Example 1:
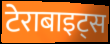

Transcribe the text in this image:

टेराबाइट्स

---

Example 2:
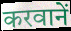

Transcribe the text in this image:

करवानें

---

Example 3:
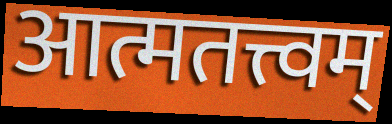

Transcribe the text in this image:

आत्मतत्त्वम्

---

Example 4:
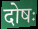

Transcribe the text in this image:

दोषः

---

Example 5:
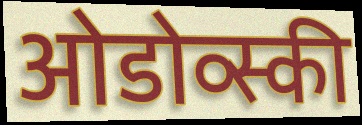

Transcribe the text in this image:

ओडोव्स्की